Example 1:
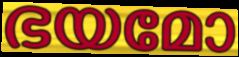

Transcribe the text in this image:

ഭയമോ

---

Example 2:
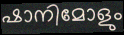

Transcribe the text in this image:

ഷാനിമോളും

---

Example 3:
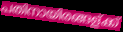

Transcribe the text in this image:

പതിനായിരങ്ങള്ക്ക്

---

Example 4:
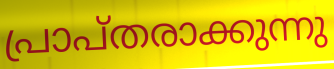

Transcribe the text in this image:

പ്രാപ്തരാക്കുന്നു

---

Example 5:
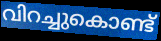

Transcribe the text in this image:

വിറച്ചുകൊണ്ട്